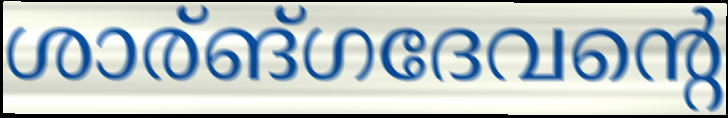
ശാര്ങ്ഗദേവന്റെ